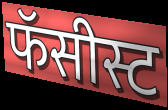
फॅसीस्ट